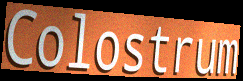
Colostrum